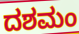
ದಶಮಂ